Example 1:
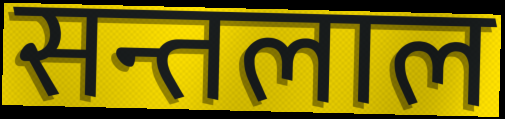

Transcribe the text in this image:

सन्तलाल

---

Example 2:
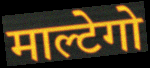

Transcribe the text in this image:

माल्टेगो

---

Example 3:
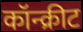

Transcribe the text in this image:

कॉन्क्रीट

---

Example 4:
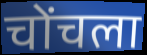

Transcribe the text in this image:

चोंचला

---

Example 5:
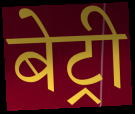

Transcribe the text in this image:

बेट्री